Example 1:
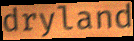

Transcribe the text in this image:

dryland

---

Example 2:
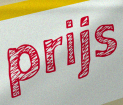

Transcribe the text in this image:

prijs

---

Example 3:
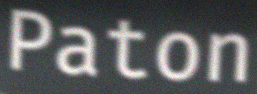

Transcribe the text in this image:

Paton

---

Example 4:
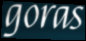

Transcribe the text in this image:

goras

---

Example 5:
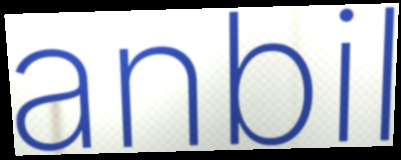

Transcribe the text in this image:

anbil